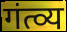
गंत्व्य